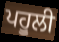
ਪਹੂਲੀ